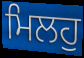
ਮਿਲਹੁ